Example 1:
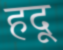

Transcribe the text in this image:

हदू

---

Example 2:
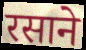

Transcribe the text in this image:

रसाने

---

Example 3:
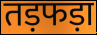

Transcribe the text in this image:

तड़फड़ा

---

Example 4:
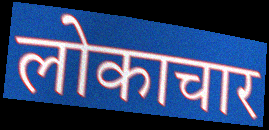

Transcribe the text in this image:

लोकाचार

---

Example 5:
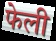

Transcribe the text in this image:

फेली